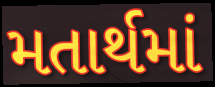
મતાર્થમાં